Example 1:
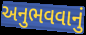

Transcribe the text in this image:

અનુભવવાનું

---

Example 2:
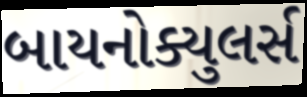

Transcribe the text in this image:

બાયનોક્યુલર્સ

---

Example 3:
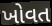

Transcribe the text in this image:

ખોવત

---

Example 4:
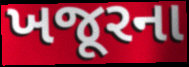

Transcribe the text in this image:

ખજૂરના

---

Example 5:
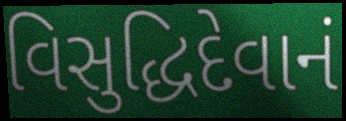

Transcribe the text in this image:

વિસુદ્ધિદેવાનં